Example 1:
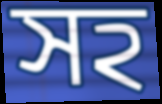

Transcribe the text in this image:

সহ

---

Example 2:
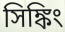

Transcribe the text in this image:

সিঙ্কিং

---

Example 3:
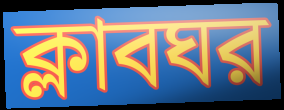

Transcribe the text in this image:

ক্লাবঘর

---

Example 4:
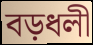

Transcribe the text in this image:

বড়ধলী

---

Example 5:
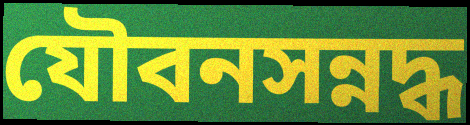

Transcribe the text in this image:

যৌবনসন্নদ্ধ